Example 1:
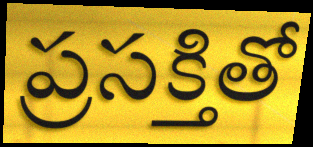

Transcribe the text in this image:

ప్రసక్తితో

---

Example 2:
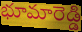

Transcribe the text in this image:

భూమారెడ్డి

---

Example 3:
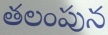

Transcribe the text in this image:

తలంపున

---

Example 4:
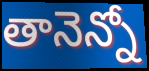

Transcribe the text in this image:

తానెన్నో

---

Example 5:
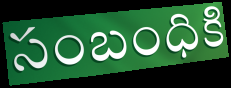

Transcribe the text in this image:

సంబంధికి